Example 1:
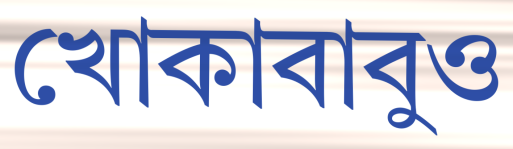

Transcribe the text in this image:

খোকাবাবুও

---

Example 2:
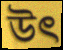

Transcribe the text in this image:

উৎ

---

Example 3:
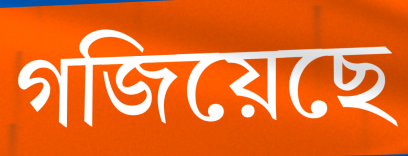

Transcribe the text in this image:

গজিয়েছে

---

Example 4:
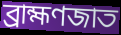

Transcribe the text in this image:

ব্রাহ্মণজাত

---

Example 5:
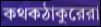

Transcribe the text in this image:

কথকঠাকুরেরা